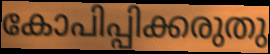
കോപിപ്പിക്കരുതു